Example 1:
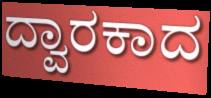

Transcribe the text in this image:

ದ್ವಾರಕಾದ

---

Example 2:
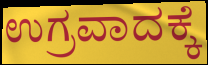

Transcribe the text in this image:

ಉಗ್ರವಾದಕ್ಕೆ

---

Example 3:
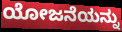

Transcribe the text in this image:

ಯೋಜನೆಯನ್ನು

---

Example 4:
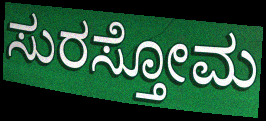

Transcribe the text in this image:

ಸುರಸ್ತೋಮ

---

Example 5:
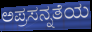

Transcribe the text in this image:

ಅಪ್ರಸನ್ನತೆಯ